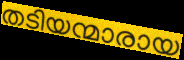
തടിയന്മാരായ